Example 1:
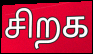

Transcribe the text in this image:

சிறக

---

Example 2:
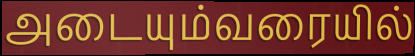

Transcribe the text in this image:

அடையும்வரையில்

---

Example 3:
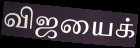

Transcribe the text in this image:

விஜயைக்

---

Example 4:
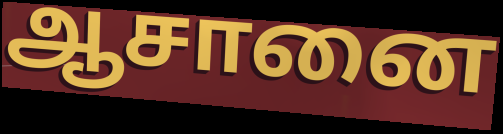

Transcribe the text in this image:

ஆசானை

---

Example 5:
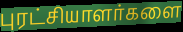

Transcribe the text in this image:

புரட்சியாளர்களை